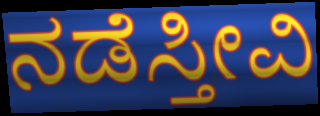
ನಡೆಸ್ತೀವಿ